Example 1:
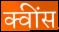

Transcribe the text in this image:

क्वींस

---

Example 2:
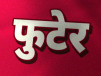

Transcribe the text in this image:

फुटेर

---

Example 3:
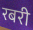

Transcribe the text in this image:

रबरी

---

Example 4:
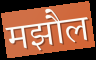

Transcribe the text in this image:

मझौल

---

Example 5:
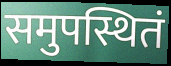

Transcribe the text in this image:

समुपस्थितं